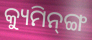
କ୍ୟୁମିନ୍‌ଙ୍ଗ